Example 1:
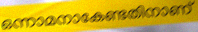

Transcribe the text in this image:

ഒന്നാമനാകേണ്ടതിനാണ്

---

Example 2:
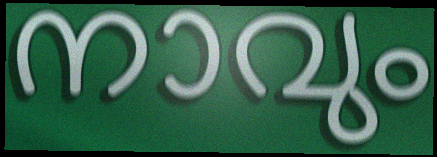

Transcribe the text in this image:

നാവും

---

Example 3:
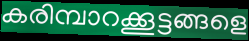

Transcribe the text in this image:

കരിമ്പാറക്കൂട്ടങ്ങളെ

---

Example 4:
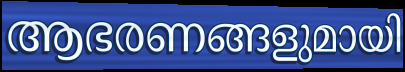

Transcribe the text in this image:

ആഭരണങ്ങളുമായി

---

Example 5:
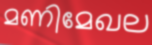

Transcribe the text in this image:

മണിമേഖല